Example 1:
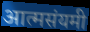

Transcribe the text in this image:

आत्मसंयमी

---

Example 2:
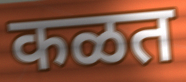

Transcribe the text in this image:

कळत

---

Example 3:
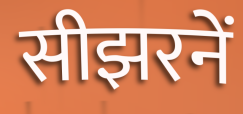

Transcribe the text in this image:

सीझरनें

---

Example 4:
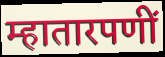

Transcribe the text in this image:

म्हातारपणीं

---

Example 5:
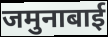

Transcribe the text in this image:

जमुनाबाई